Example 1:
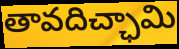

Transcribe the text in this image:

తావదిచ్ఛామి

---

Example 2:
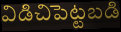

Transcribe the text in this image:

విడిచిపెట్టబడి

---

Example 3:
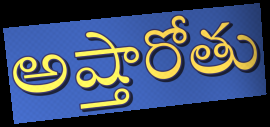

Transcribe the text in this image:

అష్తారోతు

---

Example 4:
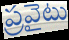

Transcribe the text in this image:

ప్రవైటు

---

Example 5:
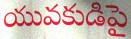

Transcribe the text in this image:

యువకుడిపై